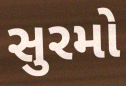
સુરમો